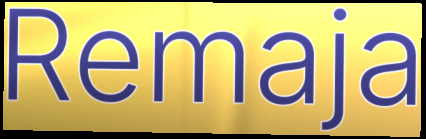
Remaja